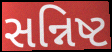
સન્નિષ્ટ